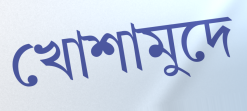
খোশামুদে